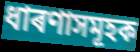
ধাৰণাসমূহক